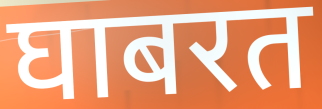
घाबरत